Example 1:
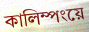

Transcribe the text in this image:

কালিম্পংয়ে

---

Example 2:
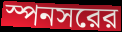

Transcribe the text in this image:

স্পনসরের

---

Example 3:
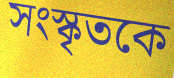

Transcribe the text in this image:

সংস্কৃতকে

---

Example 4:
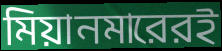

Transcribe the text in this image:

মিয়ানমারেরই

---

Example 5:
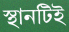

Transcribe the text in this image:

স্থানটিই